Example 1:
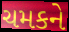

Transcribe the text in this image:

ચમકને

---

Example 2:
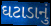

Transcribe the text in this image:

ઘટાડાનું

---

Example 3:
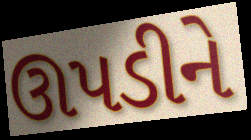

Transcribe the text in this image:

ઊપડીને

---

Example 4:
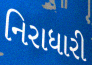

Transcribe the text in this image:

નિરાધારી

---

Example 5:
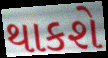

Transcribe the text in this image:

થાકશે